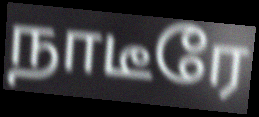
நாடீரே